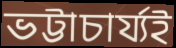
ভট্টাচাৰ্য্যই